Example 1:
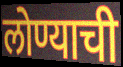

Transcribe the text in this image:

लोण्याची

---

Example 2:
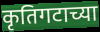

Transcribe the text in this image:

कृतिगटाच्या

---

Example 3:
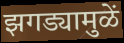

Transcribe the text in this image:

झगड्यामुळें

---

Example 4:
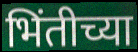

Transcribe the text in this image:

भिंतीच्या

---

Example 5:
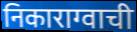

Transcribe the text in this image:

निकाराग्वाची